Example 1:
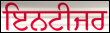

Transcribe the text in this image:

ਇਨਟੀਜਰ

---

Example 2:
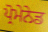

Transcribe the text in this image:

ਪ੍ਰੋਮੇਨੇਡ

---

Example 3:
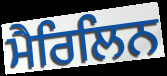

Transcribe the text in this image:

ਮੈਰਿਲਿਨ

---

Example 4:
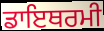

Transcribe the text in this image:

ਡਾਇਥਰਮੀ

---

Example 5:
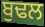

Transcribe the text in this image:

ਬੁਢਲ